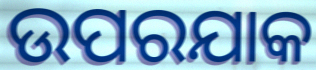
ଉପରଯାକ